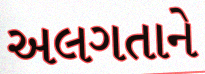
અલગતાને